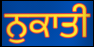
ਨੁਕਾਤੀ